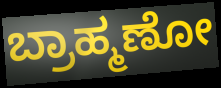
ಬ್ರಾಹ್ಮಣೋ